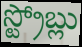
స్ట్రోబ్లు